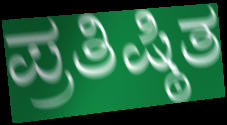
ಪ್ರತಿಷ್ಠಿತ